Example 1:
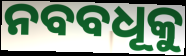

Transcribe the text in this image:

ନବବଧୂକୁ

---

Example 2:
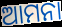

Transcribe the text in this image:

ଆମନା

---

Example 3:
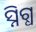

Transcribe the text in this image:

ସ୍ନିଗ୍ଧ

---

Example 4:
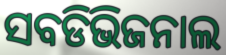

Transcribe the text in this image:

ସବଡିଭିଜନାଲ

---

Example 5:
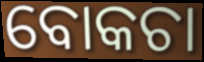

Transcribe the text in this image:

ବୋକଚା